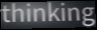
thinking